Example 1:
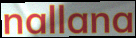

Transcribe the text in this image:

nallana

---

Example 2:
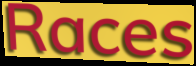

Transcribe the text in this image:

Races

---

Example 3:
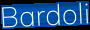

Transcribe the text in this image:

Bardoli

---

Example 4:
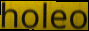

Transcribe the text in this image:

holeo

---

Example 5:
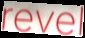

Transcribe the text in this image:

revel